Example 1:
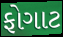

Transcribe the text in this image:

ફોગાટ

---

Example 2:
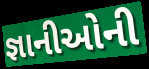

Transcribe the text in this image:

જ્ઞાનીઓની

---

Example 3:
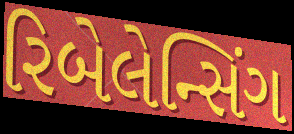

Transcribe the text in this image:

રિબેલેન્સિંગ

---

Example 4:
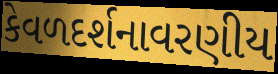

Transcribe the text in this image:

કેવળદર્શનાવરણીય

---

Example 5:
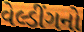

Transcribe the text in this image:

વેલ્ડીંગનો